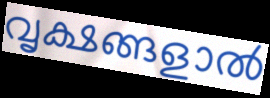
വൃക്ഷങ്ങളാൽ